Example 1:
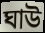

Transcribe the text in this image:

ঘাউ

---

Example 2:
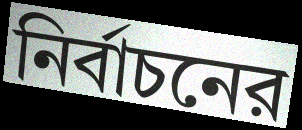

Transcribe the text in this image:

নির্বাচনের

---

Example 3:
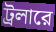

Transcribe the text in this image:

ট্রলারে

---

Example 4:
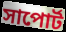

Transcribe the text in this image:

সাপোর্ট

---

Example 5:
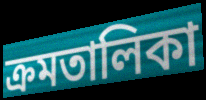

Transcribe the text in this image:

ক্রমতালিকা